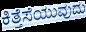
ಕಿತ್ತೆಸೆಯುವುದು